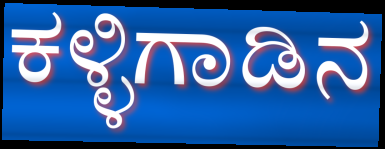
ಕಳ್ಳಿಗಾಡಿನ